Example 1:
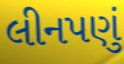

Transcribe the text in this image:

લીનપણું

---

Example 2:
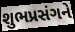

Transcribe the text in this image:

શુભપ્રસંગને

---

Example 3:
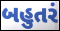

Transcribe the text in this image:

બહુતરં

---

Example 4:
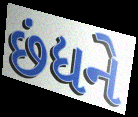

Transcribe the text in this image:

છંદ્યને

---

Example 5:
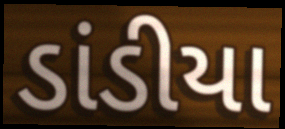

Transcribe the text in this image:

ડાંડીયા